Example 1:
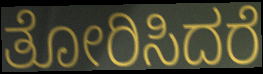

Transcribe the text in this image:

ತೋರಿಸಿದರೆ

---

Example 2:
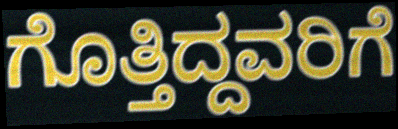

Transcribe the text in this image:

ಗೊತ್ತಿದ್ದವರಿಗೆ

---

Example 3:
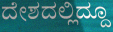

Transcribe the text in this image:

ದೇಶದಲ್ಲಿದ್ದೂ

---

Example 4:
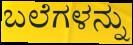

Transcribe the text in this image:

ಬಲೆಗಳನ್ನು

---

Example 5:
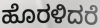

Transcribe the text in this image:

ಹೊರಳಿದರೆ